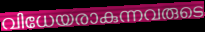
വിധേയരാകുന്നവരുടെ